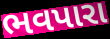
ભવપારા